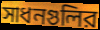
সাধনগুলির